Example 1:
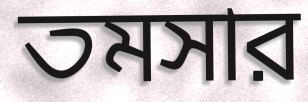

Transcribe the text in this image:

তমসার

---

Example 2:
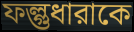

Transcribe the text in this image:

ফল্গুধারাকে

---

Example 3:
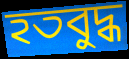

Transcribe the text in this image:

হতবুদ্ধ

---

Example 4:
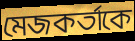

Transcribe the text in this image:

মেজকর্তাকে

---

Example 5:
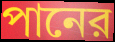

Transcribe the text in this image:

পানের